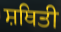
ਸ਼ਥਿਤੀ